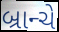
બ્રાન્ચે